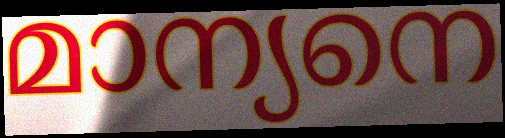
മാന്യനെ